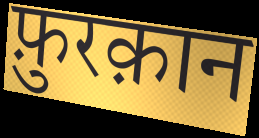
फ़ुरक़ान